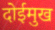
दोईमुख